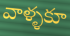
వాళ్ళకూ